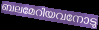
ബലമേറിയവനോടു